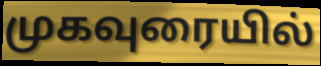
முகவுரையில்